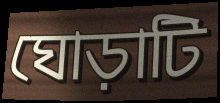
ঘোড়াটি